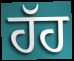
ਹੱਹ